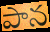
పాన